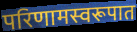
परिणामस्वरूपात